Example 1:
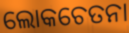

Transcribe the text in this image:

ଲୋକଚେତନା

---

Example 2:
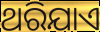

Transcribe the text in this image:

ଥରିଯାଏ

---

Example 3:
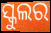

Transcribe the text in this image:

ସ୍କୁଲର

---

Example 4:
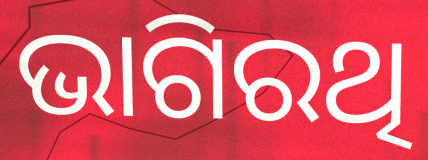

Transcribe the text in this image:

ଭାଗିରଥି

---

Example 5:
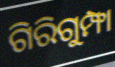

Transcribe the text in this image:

ଗିରିଗୁମ୍ଫା